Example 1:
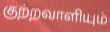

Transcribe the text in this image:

குற்றவாளியும்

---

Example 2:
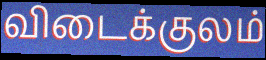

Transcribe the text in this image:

விடைக்குலம்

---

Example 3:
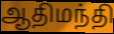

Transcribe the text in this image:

ஆதிமந்தி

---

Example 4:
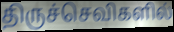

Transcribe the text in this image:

திருச்செவிகளில்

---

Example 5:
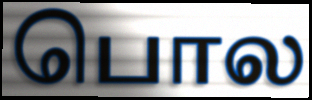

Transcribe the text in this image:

பொல